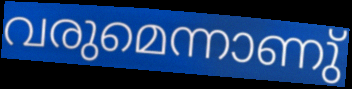
വരുമെന്നാണു്